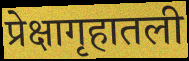
प्रेक्षागृहातली